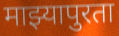
माझ्यापुरता